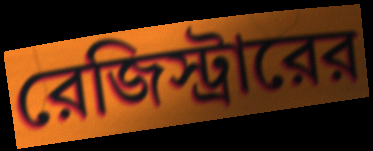
রেজিস্ট্রারের